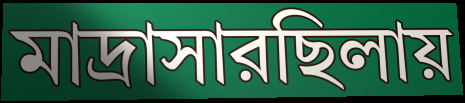
মাদ্রাসারছিলায়